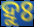
ହୁଃ